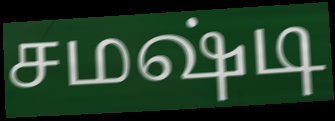
சமஷ்டி